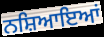
ਨਸ਼ਿਆਇਆਂ